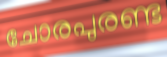
ചോരപുരണ്ട